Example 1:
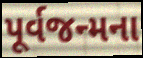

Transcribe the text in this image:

પૂર્વજન્મના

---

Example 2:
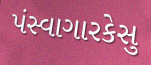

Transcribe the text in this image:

પંસ્વાગારકેસુ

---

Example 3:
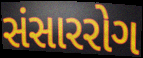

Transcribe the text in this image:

સંસારરોગ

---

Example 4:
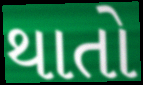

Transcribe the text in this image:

થાતો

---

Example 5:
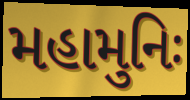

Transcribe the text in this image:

મહામુનિઃ